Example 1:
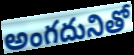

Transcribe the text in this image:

అంగదునితో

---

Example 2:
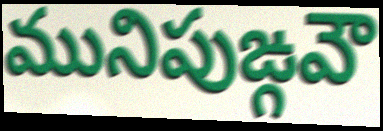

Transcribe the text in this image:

మునిపుఙ్గవౌ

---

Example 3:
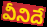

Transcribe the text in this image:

వీనిదే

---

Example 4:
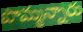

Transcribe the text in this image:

పొమ్మన్నారు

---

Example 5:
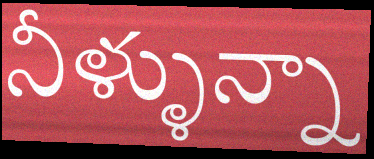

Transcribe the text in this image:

నీళ్ళున్నా